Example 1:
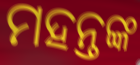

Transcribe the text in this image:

ମହନ୍ତଙ୍କ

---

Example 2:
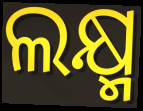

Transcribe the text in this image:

ଲକ୍ଷ୍ମ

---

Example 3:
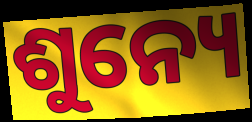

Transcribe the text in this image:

ଶୁନ୍ୟେ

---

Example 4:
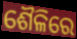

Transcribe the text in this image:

ଶୈଳିରେ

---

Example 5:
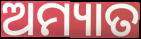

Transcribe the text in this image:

ଅମ୍ୟାତ